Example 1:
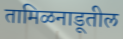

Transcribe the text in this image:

तामिळनाडूतील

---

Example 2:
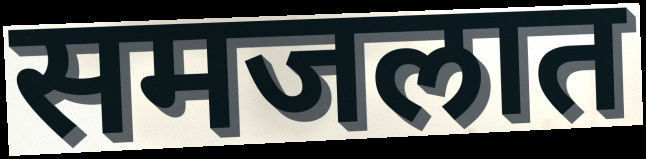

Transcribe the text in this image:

समजलात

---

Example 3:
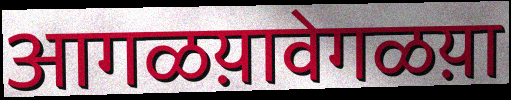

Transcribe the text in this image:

आगळय़ावेगळय़ा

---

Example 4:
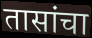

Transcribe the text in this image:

तासांचा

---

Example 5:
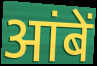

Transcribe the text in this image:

आंबें